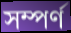
সম্পর্ণ